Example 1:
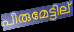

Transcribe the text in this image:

പീരുമേട്ടില്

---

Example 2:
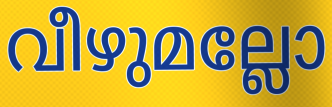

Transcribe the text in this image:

വീഴുമല്ലോ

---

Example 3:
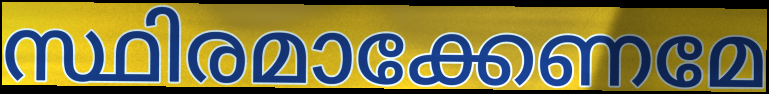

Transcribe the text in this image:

സ്ഥിരമാക്കേണമേ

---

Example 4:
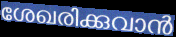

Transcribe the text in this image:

ശേഖരിക്കുവാൻ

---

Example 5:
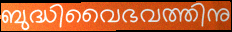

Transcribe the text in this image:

ബുദ്ധിവൈഭവത്തിനു